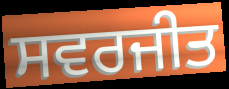
ਸਵਰਜੀਤ